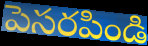
పెసరపిండి